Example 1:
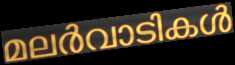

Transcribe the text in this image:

മലർവാടികൾ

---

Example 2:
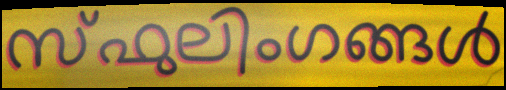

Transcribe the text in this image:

സ്ഫുലിംഗങ്ങൾ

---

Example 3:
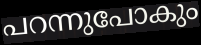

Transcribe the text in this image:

പറന്നുപോകും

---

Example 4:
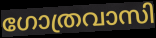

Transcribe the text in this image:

ഗോത്രവാസി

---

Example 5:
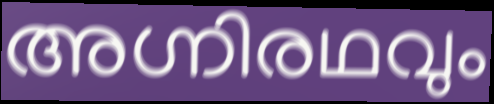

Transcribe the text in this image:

അഗ്നിരഥവും